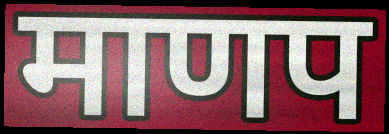
माणप